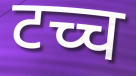
टच्च